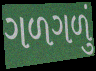
ગળગળું